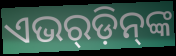
ଏଭର୍‍ଡ଼ିନ୍‌ଙ୍କ